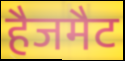
हैजमैट